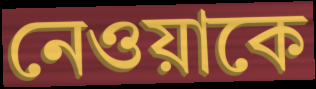
নেওয়াকে